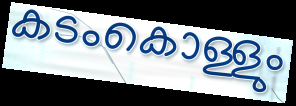
കടംകൊള്ളും